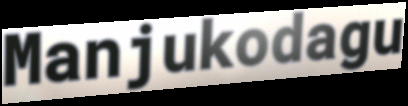
Manjukodagu